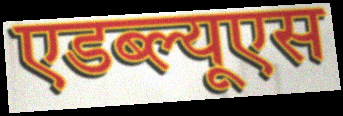
एडब्ल्यूएस